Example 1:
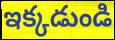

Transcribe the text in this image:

ఇక్కడుండి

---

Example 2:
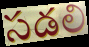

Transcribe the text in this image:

సడలి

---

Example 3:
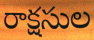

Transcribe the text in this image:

రాక్షసుల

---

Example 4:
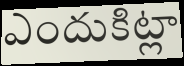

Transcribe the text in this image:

ఎందుకిట్లా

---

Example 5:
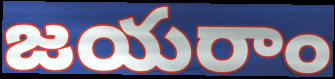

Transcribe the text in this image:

జయరాం